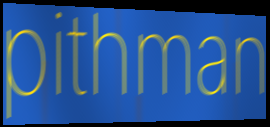
pithman